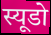
स्यूडो